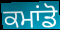
ਕਮਾਂਡੋ